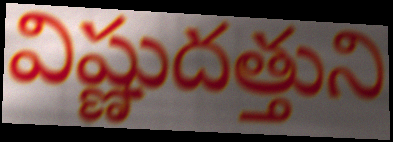
విష్ణుదత్తుని